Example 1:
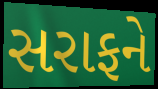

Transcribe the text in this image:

સરાફને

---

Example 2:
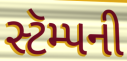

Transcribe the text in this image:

સ્ટૅમ્પની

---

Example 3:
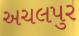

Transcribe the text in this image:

અચલપુર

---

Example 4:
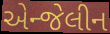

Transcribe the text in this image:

એન્જેલીન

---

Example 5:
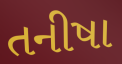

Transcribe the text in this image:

તનીષા